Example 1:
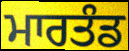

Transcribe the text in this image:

ਮਾਰਤੰਡ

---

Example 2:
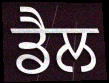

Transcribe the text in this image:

ਡੈਲ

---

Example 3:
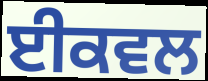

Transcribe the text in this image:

ਈਕਵਲ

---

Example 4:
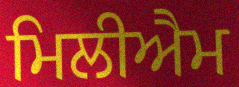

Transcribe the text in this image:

ਮਿਲੀਐਮ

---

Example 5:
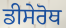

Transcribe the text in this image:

ਡੀਸੇਰੋਥ